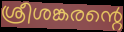
ശ്രീശങ്കരന്റെ